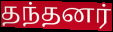
தந்தனர்